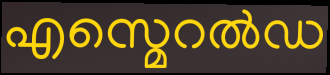
എസ്മെറൽഡ